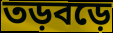
তড়বড়ে